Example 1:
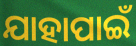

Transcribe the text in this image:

ଯାହାପାଇଁ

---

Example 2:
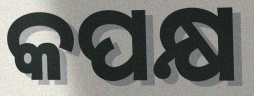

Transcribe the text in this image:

କପକ୍ଷ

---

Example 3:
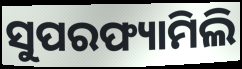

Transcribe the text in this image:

ସୁପରଫ୍ୟାମିଲି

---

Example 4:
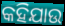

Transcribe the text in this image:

କହିଯାଉ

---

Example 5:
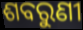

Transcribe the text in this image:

ଶବରୁଣୀ